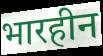
भारहीन